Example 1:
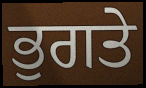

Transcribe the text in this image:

ਭੁਗਤੇ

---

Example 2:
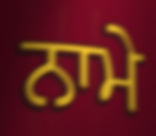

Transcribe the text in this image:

ਨਾਮੇ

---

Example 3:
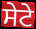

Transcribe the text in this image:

ਸੇਟੇ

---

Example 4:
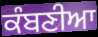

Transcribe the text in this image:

ਕੰਬਣੀਆ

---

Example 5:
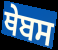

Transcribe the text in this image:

ਥੇਬਸ